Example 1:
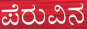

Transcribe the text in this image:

ಪೆರುವಿನ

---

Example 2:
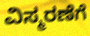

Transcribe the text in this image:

ವಿಸ್ಮರಣೆಗೆ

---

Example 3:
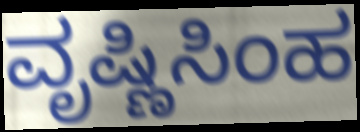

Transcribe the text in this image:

ವೃಷ್ಣಿಸಿಂಹ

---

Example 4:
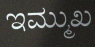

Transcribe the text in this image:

ಇಮ್ಮುಖ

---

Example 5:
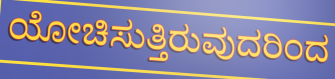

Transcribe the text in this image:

ಯೋಚಿಸುತ್ತಿರುವುದರಿಂದ